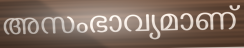
അസംഭാവ്യമാണ്